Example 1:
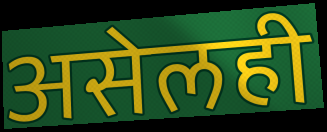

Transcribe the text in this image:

असेलही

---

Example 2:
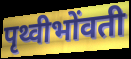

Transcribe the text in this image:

पृथ्वीभोंवती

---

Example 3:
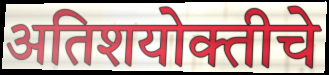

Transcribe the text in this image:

अतिशयोक्तीचे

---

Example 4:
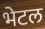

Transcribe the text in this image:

भेटल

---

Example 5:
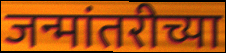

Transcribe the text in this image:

जन्मांतरीच्या